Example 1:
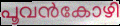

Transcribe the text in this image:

പൂവൻകോഴി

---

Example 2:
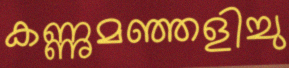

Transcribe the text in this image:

കണ്ണുമഞ്ഞളിച്ചു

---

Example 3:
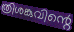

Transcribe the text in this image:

ത്രിശങ്കുവിന്റെ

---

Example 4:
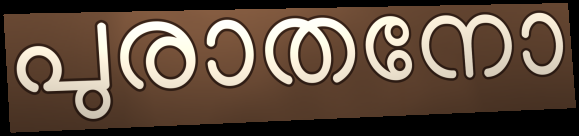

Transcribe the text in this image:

പുരാതനോ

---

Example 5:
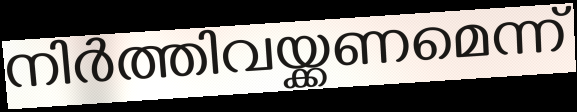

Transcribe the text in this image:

നിർത്തിവയ്ക്കണമെന്ന്